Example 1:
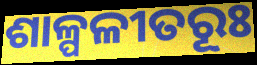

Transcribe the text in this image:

ଶାଳ୍ପଳୀତରୂଃ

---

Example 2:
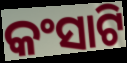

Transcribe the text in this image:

କଂସାଟି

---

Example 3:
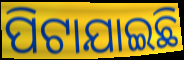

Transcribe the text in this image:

ପିଟାଯାଇଛି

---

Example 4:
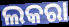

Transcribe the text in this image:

ଲକରା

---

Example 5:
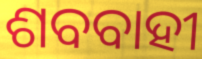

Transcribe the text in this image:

ଶବବାହୀ